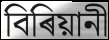
বিৰিয়ানী